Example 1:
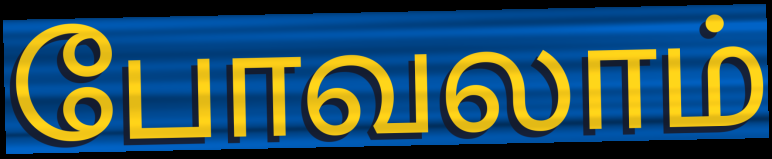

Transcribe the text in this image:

போவலாம்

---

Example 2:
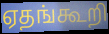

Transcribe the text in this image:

ஏதங்கூறி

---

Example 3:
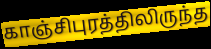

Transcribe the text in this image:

காஞ்சிபுரத்திலிருந்த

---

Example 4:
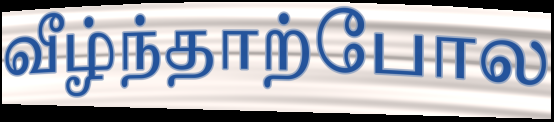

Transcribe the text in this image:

வீழ்ந்தாற்போல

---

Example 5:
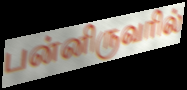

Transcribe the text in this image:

பன்னிருவரில்